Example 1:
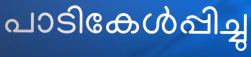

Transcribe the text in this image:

പാടികേൾപ്പിച്ചു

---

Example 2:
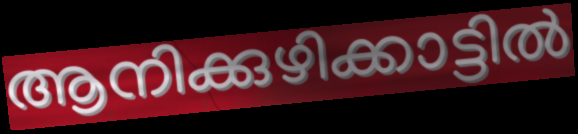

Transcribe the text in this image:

ആനിക്കുഴിക്കാട്ടിൽ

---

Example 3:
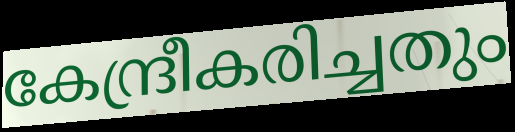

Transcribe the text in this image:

കേന്ദ്രീകരിച്ചതും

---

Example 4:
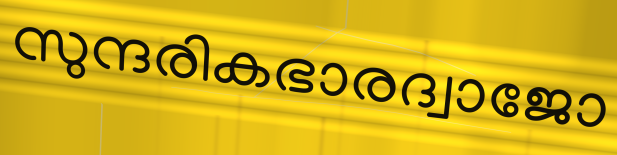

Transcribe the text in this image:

സുന്ദരികഭാരദ്വാജോ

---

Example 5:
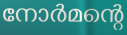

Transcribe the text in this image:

നോർമന്റെ